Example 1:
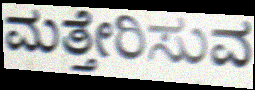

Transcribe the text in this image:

ಮತ್ತೇರಿಸುವ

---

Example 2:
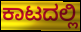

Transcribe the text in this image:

ಕಾಟದಲ್ಲಿ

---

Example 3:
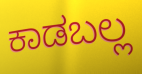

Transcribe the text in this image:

ಕಾಡಬಲ್ಲ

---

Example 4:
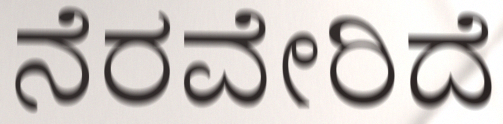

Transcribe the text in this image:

ನೆರವೇರಿದೆ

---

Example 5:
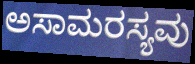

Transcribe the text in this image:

ಅಸಾಮರಸ್ಯವು